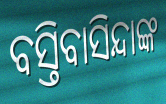
ବସ୍ତିବାସିନ୍ଦାଙ୍କ